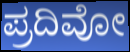
ಪ್ರದಿವೋ